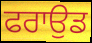
ਫਰਾਉਡ